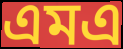
এমএ